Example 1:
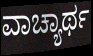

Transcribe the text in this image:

ವಾಚ್ಯಾರ್ಥ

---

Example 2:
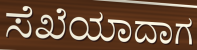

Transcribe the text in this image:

ಸೆಖೆಯಾದಾಗ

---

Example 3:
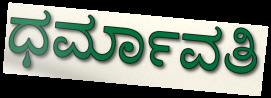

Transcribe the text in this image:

ಧರ್ಮಾವತಿ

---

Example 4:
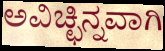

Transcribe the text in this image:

ಅವಿಚ್ಛಿನ್ನವಾಗಿ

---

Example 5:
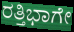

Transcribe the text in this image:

ರತ್ತಿಭಾಗೇ